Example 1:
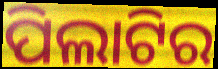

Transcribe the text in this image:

ପିଲାଟିର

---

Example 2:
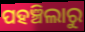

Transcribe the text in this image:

ପହଞ୍ଚିଲାରୁ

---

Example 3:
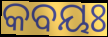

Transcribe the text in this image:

କବୟଃ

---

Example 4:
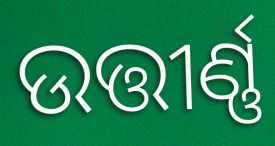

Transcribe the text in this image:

ଉତ୍ତୀର୍ଣ୍ଣ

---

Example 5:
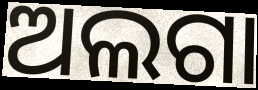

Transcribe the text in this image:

ଅଲଗା